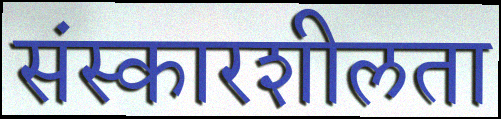
संस्कारशीलता